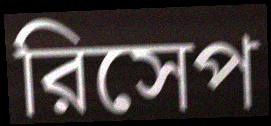
রিসেপ